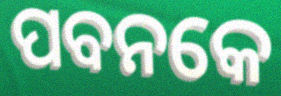
ପବନକେ